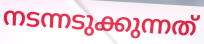
നടന്നടുക്കുന്നത്